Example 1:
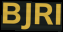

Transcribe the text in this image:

BJRI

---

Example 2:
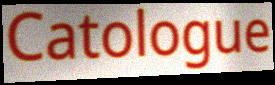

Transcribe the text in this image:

Catologue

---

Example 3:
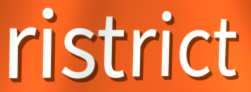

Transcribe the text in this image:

ristrict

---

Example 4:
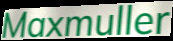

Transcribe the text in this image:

Maxmuller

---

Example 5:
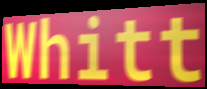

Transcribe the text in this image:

Whitt